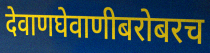
देवाणघेवाणीबरोबरच